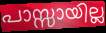
പാസ്സായില്ല